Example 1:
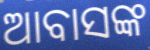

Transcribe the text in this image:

ଆବାସଙ୍କ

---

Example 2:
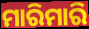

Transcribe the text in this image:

ମାରିମାରି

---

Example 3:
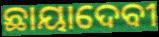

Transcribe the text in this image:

ଛାୟାଦେବୀ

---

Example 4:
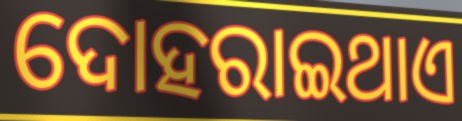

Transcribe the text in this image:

ଦୋହରାଇଥାଏ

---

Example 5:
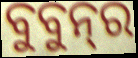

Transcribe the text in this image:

ବୁବୁନ୍‌ର